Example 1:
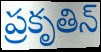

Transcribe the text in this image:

ప్రకృతిన్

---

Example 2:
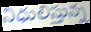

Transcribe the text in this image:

నిధులిస్తున్న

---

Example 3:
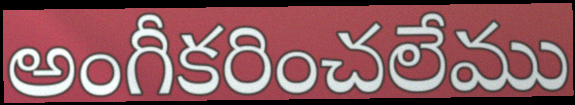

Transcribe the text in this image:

అంగీకరించలేము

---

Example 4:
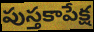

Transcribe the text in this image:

పుస్తకాపేక్ష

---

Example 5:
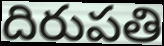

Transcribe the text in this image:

దిరుపతి